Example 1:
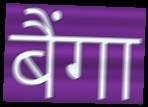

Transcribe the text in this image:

बैंगा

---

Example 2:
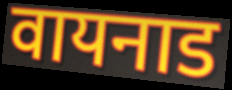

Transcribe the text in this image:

वायनाड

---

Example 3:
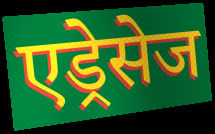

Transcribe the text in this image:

एड्रेसेज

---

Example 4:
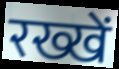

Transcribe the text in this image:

रख्खें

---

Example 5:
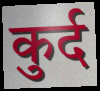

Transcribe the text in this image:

कुर्द